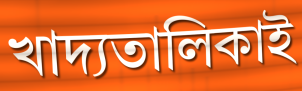
খাদ্যতালিকাই